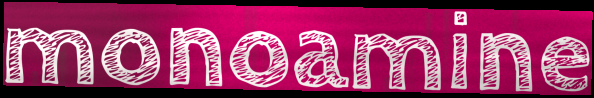
monoamine